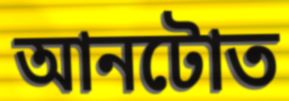
আনটোত